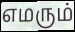
எமரும்